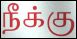
நீக்கு